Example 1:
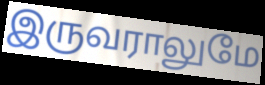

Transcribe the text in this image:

இருவராலுமே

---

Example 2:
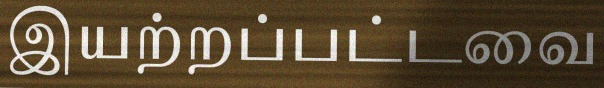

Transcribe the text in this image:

இயற்றப்பட்டவை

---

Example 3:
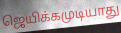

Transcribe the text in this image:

ஜெயிக்கமுடியாது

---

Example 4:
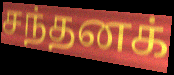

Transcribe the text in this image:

சந்தனக்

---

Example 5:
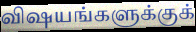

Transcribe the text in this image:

விஷயங்களுக்குக்